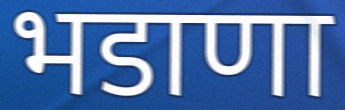
भडाणा